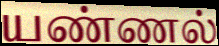
யண்ணல்